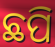
ଛପି